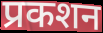
प्रकशन